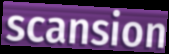
scansion